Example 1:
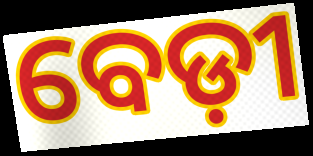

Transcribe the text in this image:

ବେଡ଼ୀ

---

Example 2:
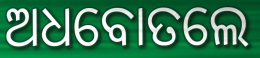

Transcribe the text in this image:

ଅଧବୋତଲେ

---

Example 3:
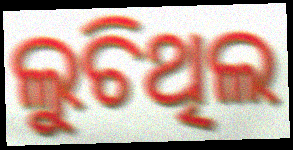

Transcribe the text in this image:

ଲୁଚିଥିଲ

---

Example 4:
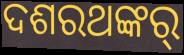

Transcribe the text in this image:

ଦଶରଥଙ୍କର୍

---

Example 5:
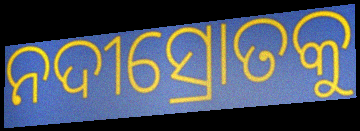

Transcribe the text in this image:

ନଦୀସ୍ରୋତକୁ